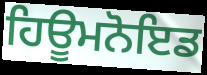
ਹਿਊਮਨੋਇਡ